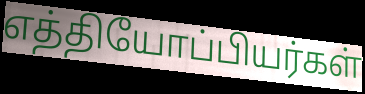
எத்தியோப்பியர்கள்